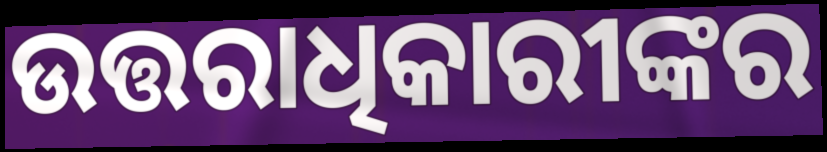
ଉତ୍ତରାଧିକାରୀଙ୍କର